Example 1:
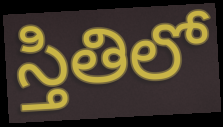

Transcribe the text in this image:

స్తితిలో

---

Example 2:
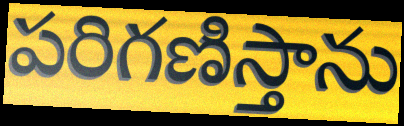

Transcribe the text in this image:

పరిగణిస్తాను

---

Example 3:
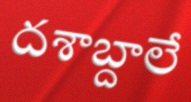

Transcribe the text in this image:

దశాబ్దాలే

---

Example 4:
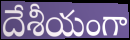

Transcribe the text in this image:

దేశీయంగా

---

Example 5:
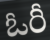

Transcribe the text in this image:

ఓరీ